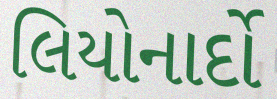
લિયોનાર્દો